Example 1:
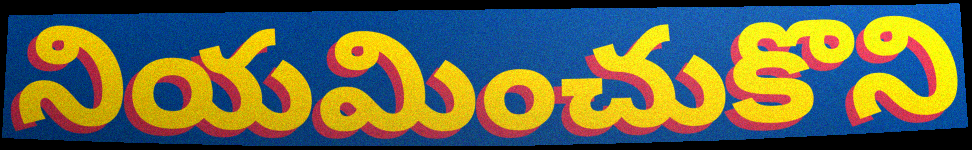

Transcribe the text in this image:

నియమించుకొని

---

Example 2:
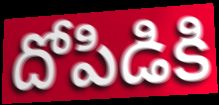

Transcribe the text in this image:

దోపిడికి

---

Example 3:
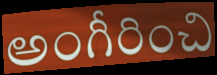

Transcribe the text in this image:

అంగీరించి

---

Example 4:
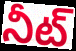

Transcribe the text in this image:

నీట్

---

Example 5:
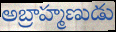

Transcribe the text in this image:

అబ్రాహ్మణుడు